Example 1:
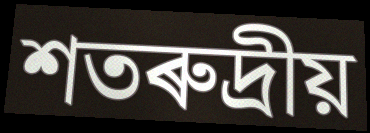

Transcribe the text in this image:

শতৰুদ্ৰীয়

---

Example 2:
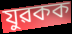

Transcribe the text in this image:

যুৱকক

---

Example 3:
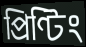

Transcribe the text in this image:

প্ৰিণ্টিং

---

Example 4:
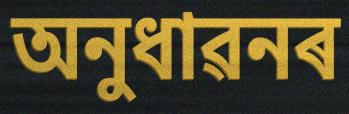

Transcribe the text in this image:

অনুধাৱনৰ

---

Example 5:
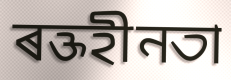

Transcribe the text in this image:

ৰক্তহীনতা